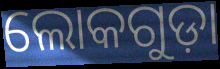
ଲୋକଗୁଡ଼ା